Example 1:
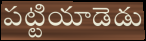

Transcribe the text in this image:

పట్టియాడెడు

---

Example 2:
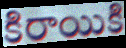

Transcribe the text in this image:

కిరాయికి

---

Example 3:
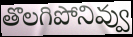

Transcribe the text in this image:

తొలగిపోనివ్వు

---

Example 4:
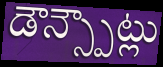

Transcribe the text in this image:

డౌన్స్పౌట్లు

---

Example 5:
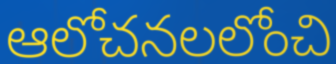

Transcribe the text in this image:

ఆలోచనలలోంచి